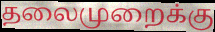
தலைமுறைக்கு